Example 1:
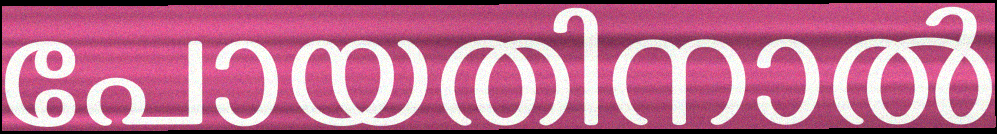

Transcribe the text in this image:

പോയതിനാൽ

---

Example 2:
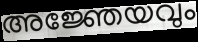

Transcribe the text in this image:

അജ്ഞേയവും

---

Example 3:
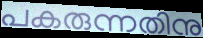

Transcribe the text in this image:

പകരുന്നതിനു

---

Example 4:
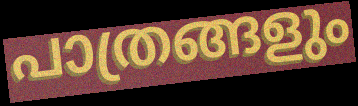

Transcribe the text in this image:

പാത്രങ്ങളും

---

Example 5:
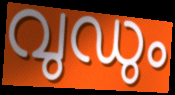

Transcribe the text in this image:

വുഡും